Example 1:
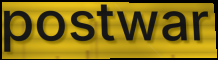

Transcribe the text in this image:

postwar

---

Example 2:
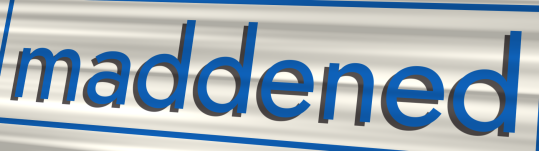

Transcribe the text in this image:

maddened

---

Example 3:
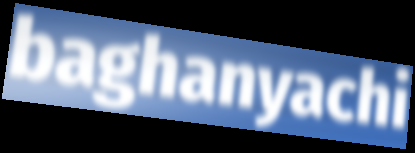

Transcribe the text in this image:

baghanyachi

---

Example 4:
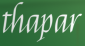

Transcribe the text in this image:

thapar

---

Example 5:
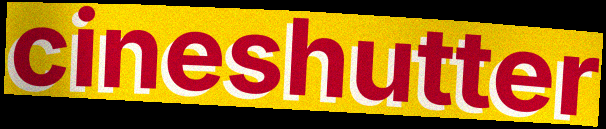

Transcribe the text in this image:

cineshutter